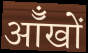
ऑँखों